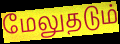
மேலுதடும்